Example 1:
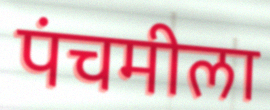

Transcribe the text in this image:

पंचमीला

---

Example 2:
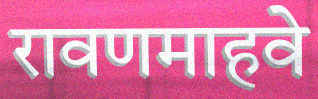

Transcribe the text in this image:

रावणमाहवे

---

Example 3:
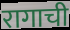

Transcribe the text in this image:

रागाची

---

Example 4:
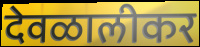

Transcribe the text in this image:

देवळालीकर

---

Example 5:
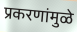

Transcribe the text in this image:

प्रकरणांमुळे